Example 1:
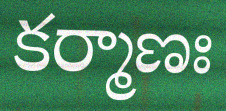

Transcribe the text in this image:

కర్మాణః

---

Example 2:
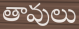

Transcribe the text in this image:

తావులు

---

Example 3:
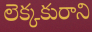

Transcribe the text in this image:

లెక్కకురాని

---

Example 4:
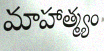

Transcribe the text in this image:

మాహాత్మ్యం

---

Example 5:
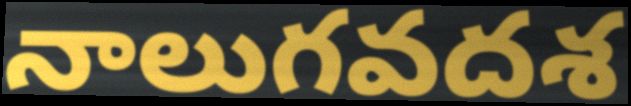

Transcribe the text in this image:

నాలుగవదశ